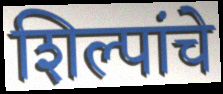
शिल्पांचे